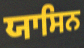
ਯਾਸਿਨ